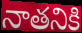
నాతనికి